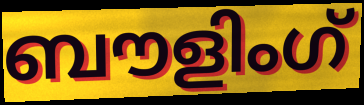
ബൗളിംഗ്